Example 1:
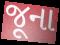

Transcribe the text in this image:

જૂના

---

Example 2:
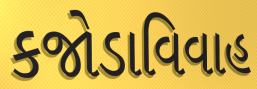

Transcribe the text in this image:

કજોડાવિવાહ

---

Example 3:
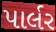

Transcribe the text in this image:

પાર્લર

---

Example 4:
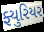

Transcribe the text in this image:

ફ્યુરિયર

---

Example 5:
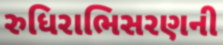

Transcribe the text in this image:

રુધિરાભિસરણની